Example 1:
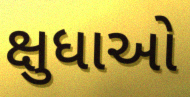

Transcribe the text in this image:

ક્ષુધાઓ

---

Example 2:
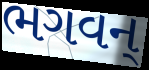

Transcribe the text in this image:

ભગવન્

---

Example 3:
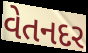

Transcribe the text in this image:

વેતનદર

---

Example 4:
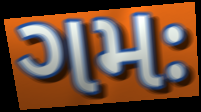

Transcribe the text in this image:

ગમઃ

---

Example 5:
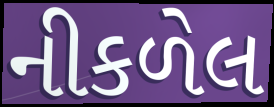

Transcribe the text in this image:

નીકળેલ